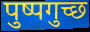
पुष्पगुच्छ